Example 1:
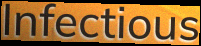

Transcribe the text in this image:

Infectious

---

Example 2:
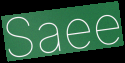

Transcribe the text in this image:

Saee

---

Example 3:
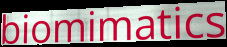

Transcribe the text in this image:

biomimatics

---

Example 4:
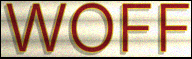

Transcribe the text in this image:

WOFF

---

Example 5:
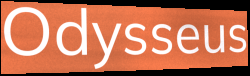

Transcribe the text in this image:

Odysseus